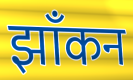
झाँकन